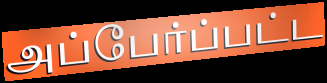
அப்பேர்ப்பட்ட